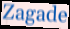
Zagade